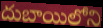
దుబాయిలోని